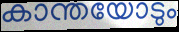
കാന്തയോടും